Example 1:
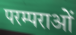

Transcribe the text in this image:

परम्पराओं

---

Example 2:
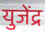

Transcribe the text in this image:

युजेंद्र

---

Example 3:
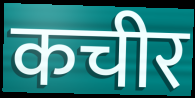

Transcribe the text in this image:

कचीर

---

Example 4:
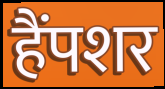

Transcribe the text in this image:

हैंपशर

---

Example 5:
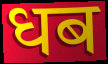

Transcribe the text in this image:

धब